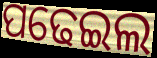
ପଢେଇଲ